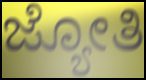
ಜ್ಯೋತಿ